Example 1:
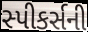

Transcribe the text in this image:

સ્પીકર્સની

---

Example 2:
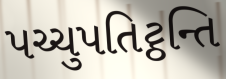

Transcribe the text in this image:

પચ્ચુપતિટ્ઠન્તિ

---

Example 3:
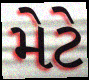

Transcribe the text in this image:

મેટે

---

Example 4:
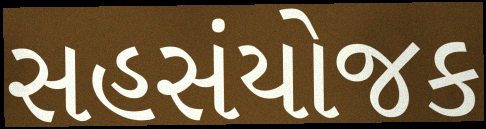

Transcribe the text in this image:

સહસંયોજક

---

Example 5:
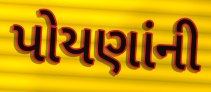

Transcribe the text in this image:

પોયણાંની